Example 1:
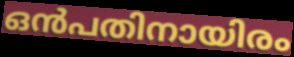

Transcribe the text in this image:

ഒൻപതിനായിരം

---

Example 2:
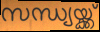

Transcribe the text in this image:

സന്ധ്യയ്ക്ക്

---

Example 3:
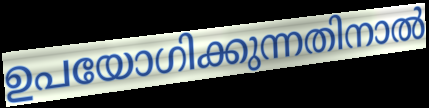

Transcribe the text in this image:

ഉപയോഗിക്കുന്നതിനാൽ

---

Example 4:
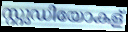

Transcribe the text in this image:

സ്റ്റുഡിയോകള്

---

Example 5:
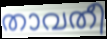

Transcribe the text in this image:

താവതീ